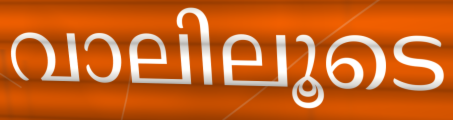
വാലിലൂടെ